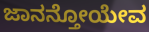
ಜಾನನ್ತೋಯೇವ